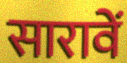
सारावें